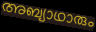
അബ്യാഥാരും